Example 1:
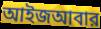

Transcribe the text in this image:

আইজআবার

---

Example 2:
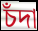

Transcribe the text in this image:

চঁদা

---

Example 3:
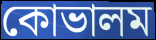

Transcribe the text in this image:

কোভালম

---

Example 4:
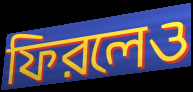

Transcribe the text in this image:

ফিরলেও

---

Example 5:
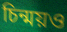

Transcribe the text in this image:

চিন্ময়ও